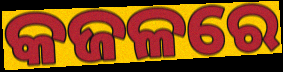
କଜଳରେ